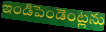
ఇండిపెండెంట్లను